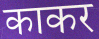
काकर